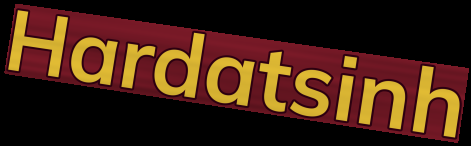
Hardatsinh